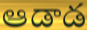
ఆడాడ